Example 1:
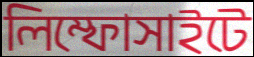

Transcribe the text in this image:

লিম্ফোসাইটে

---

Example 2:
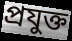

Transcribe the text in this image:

প্রযুক্ত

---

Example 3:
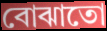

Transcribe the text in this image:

বোঝাতো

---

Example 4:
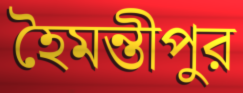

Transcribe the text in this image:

হৈমন্তীপুর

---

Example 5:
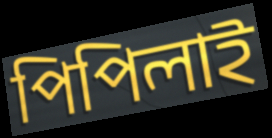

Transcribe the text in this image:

পিপিলাই